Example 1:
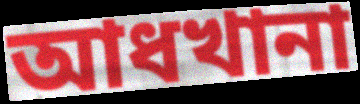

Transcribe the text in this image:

আধখানা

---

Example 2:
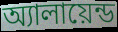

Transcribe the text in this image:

অ্যালায়েন্ড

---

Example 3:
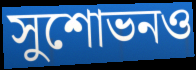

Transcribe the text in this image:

সুশোভনও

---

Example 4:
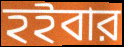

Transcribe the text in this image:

হইবার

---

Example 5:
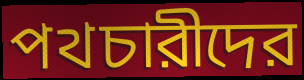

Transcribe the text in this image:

পথচারীদের